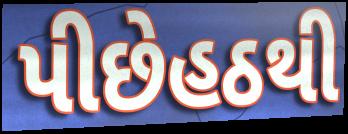
પીછેહઠથી